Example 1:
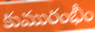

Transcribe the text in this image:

కుమురంభీం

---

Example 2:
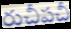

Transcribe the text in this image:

రుచీపచీ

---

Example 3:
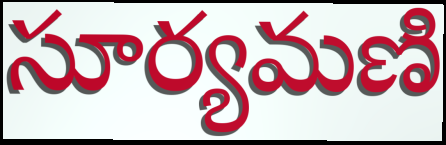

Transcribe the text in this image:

సూర్యమణి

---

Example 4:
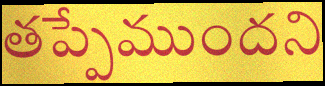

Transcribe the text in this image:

తప్పేముందని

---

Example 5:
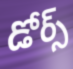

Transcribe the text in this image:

డోర్స్